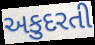
અકુદરતી